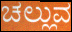
ಚಲ್ಲುವ